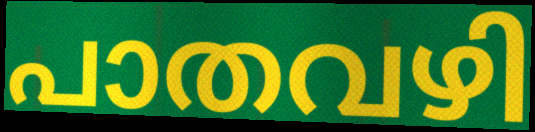
പാതവഴി